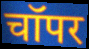
चॉपर